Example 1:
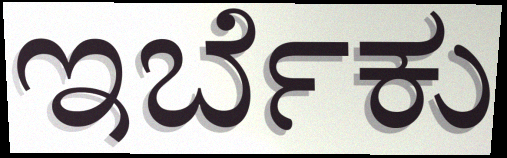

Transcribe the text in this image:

ಇರ್ಬೆಕು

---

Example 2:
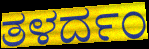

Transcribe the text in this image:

ತಳರ್ದಂ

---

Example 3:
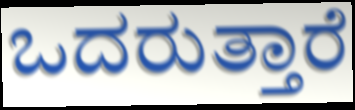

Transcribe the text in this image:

ಒದರುತ್ತಾರೆ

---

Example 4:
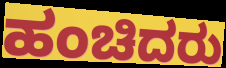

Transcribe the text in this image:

ಹಂಚಿದರು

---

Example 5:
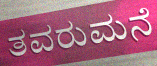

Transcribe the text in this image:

ತವರುಮನೆ